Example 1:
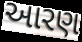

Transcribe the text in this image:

આરણ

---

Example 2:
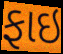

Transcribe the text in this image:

ફાઇ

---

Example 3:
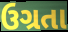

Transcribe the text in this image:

ઉગ્રતા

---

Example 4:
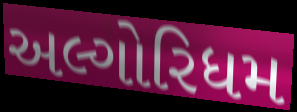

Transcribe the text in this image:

અલ્ગોરિધમ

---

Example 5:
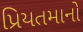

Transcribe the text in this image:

પ્રિયતમાનો